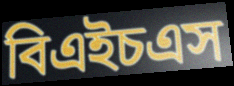
বিএইচএস